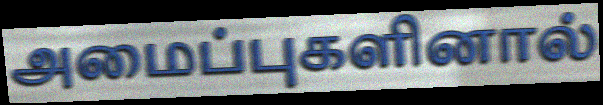
அமைப்புகளினால்